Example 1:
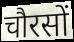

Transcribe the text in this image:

चौरसों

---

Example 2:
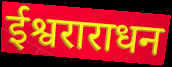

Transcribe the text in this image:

ईश्वराराधन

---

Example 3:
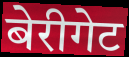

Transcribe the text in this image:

बेरीगेट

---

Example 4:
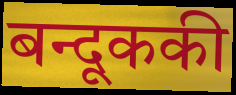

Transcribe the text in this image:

बन्दूककी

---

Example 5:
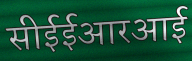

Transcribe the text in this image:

सीईईआरआई